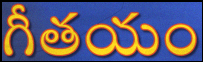
గీతయం